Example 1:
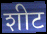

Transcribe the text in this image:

शीट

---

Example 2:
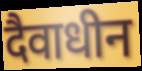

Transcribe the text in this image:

दैवाधीन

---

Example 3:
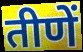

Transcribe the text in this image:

तीणें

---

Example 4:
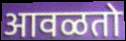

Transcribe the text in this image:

आवळतो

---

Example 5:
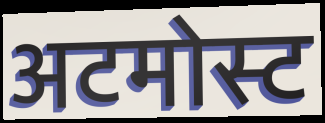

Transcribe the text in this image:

अटमोस्ट